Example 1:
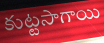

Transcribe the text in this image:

కుట్టసాగాయి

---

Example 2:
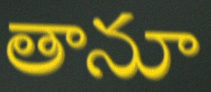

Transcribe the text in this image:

తానూ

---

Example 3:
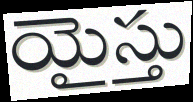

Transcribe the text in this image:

యైస్తు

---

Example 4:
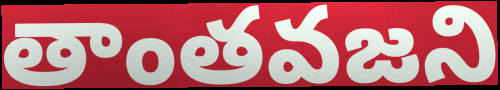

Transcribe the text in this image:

తాంతవజని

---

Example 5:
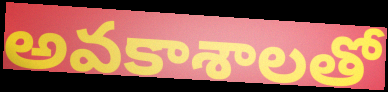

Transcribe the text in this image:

అవకాశాలతో